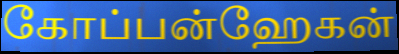
கோப்பன்ஹேகன்